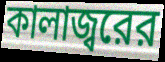
কালাজ্বরের